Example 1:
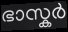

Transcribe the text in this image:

ഭാസ്കർ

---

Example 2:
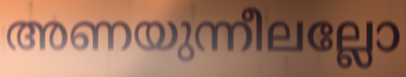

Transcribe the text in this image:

അണയുന്നീലല്ലോ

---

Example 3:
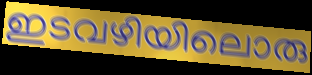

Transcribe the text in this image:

ഇടവഴിയിലൊരു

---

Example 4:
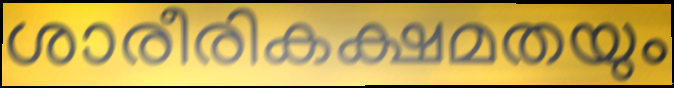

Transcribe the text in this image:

ശാരീരികക്ഷമതയും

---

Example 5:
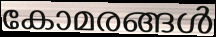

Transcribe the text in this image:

കോമരങ്ങൾ